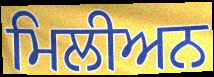
ਮਿਲੀਅਨ